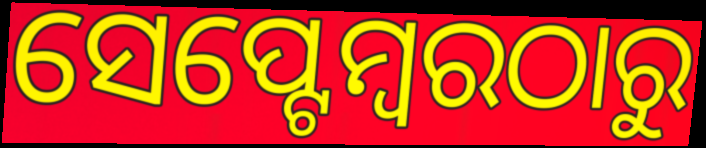
ସେପ୍ଟେମ୍ବରଠାରୁ